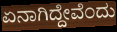
ಏನಾಗಿದ್ದೇವೆಂದು